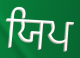
ਯਿਪ